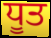
ਧੂਤ